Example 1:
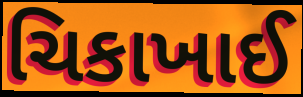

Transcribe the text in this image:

ચિકાખાઈ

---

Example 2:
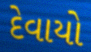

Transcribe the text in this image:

દેવાયો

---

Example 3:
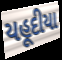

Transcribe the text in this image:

યહૂદીયા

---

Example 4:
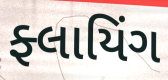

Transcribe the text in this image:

ફ્લાયિંગ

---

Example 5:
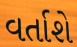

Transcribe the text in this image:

વર્તાશે